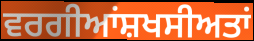
ਵਰਗੀਆਂਸ਼ਖਸੀਅਤਾਂ